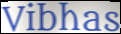
Vibhas